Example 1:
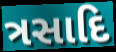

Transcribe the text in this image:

ત્રસાદિ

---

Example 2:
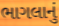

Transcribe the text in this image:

ભાગલાનું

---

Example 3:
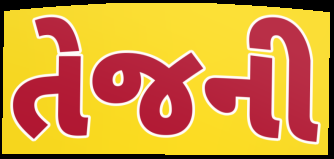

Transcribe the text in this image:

તેજની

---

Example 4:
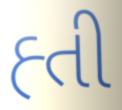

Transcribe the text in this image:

હ્તી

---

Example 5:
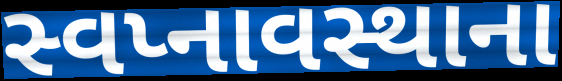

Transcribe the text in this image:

સ્વપ્નાવસ્થાના